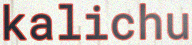
kalichu